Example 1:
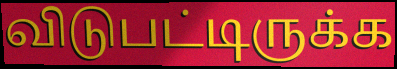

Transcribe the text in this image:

விடுபட்டிருக்க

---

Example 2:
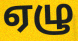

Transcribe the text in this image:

ஏழு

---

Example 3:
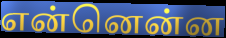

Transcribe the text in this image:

என்னென்ன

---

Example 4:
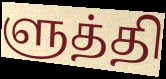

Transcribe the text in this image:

ளுத்தி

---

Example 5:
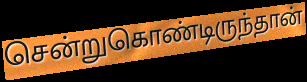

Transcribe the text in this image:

சென்றுகொண்டிருந்தான்